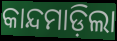
କାନ୍ଦମାଡ଼ିଲା